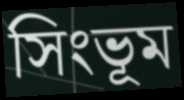
সিংভূম